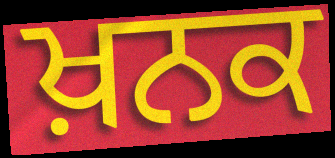
ਖ਼ਨਕ